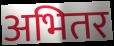
अभितर